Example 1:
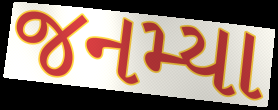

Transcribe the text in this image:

જનમ્યા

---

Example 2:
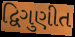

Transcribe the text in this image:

દ્વિગુણીત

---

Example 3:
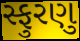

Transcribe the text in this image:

સ્ફુરણુ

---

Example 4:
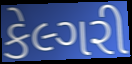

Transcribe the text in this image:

કેલ્ગરી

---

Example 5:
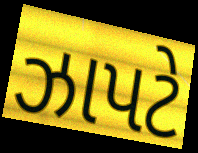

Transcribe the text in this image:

ઝાપટે